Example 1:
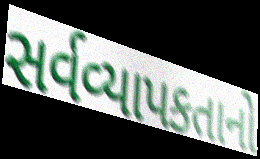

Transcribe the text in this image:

સર્વવ્યાપકતાનો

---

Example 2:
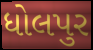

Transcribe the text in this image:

ધોલપુર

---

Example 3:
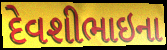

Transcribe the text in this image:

દેવશીભાઇના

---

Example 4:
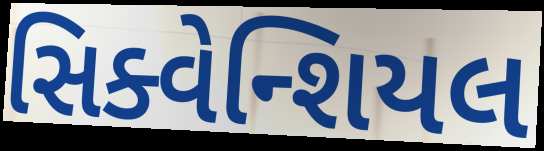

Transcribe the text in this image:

સિક્વેન્શિયલ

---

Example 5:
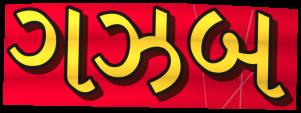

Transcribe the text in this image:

ગઝબ